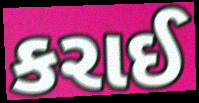
કરાઈ